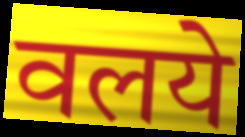
वलये